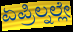
ಏಪ್ರಿಲ್ನಲ್ಲೇ